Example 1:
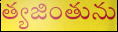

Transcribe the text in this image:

త్యజింతును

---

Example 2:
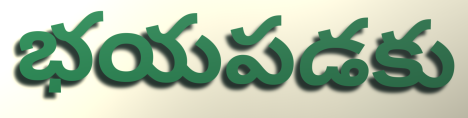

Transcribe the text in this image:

భయపడకు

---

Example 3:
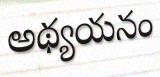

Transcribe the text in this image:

అథ్యయనం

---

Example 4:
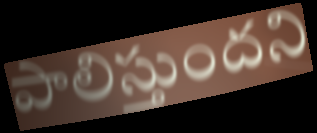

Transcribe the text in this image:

పాలిస్తుందని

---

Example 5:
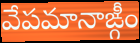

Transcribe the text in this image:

వేపమానాఙ్గీం